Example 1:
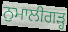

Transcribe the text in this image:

ਨੁਮਾਲੀਗੜ੍ਹ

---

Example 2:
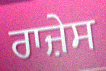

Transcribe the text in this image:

ਰਾਜ਼ੇਸ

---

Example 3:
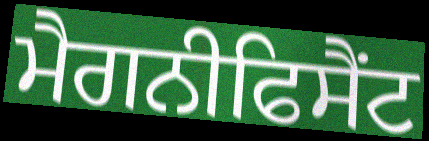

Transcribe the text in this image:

ਮੈਗਨੀਫਿਸੈਂਟ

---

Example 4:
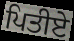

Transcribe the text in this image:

ਪਿਤੀਏ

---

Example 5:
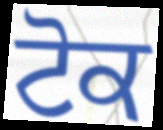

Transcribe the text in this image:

ਟੋਕ